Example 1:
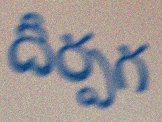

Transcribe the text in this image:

దీర్పగ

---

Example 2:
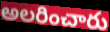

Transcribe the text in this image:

అలరించారు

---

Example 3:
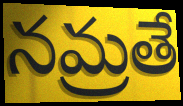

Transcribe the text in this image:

నమ్రతే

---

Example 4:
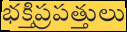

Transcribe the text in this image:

భక్తిప్రపత్తులు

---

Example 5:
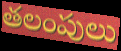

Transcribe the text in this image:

తలంపులు